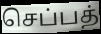
செப்பத்